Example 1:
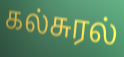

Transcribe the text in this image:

கல்சுரல்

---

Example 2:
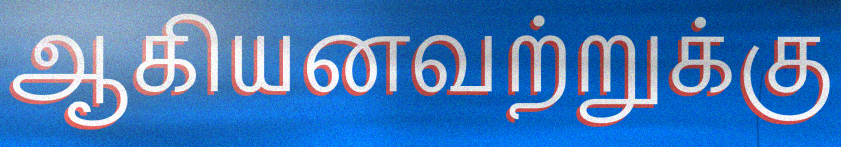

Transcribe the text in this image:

ஆகியனவற்றுக்கு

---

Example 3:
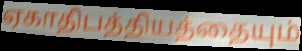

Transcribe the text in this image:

ஏகாதிபத்தியத்தையும்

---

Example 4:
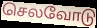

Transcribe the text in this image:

செலவோடு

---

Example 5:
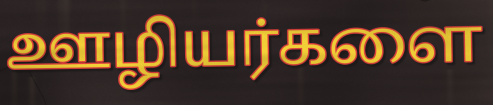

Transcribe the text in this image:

ஊழியர்களை